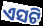
ଏସଟି